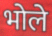
भोले